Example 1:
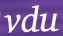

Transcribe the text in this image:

vdu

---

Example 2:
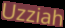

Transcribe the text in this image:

Uzziah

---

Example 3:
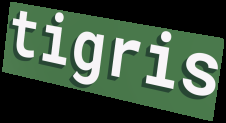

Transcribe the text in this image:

tigris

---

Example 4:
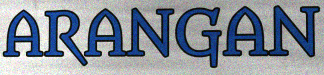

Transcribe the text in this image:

ARANGAN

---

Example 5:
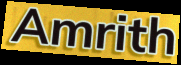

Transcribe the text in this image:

Amrith